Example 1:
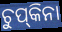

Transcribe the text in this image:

ଚୁପ୍‌କିନା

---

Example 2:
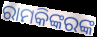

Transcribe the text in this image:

ରାମକିଙ୍କରଙ୍କ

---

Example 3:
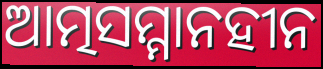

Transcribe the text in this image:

ଆତ୍ମସମ୍ମାନହୀନ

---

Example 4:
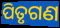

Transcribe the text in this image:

ପିତୃଗଣ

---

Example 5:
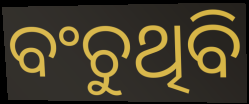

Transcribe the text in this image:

ବଂଚୁଥିବି